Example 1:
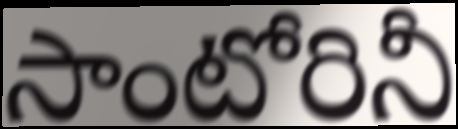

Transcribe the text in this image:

సాంటోరినీ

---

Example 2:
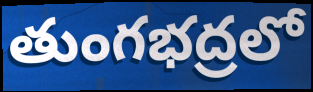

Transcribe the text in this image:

తుంగభద్రలో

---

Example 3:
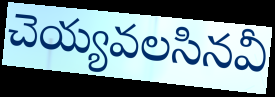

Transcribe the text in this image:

చెయ్యవలసినవీ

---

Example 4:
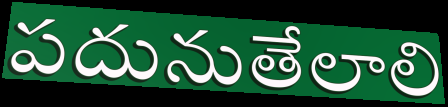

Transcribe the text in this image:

పదునుతేలాలి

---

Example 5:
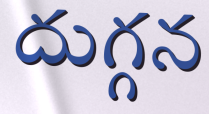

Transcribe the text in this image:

దుగ్గన